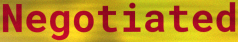
Negotiated